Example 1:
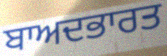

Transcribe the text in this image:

ਬਾਅਦਭਾਰਤ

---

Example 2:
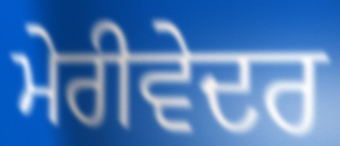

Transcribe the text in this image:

ਮੇਰੀਵੇਦਰ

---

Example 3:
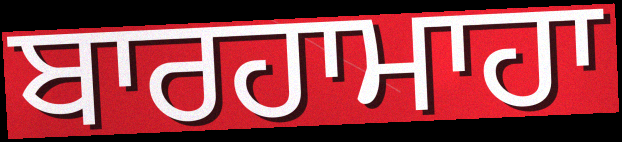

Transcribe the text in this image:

ਬਾਰਹਾਮਾਹਾ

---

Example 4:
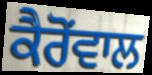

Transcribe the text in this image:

ਕੈਰੋਂਵਾਲ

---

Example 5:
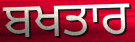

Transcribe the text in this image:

ਬਖਤਾਰ